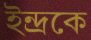
ইন্দ্রকে